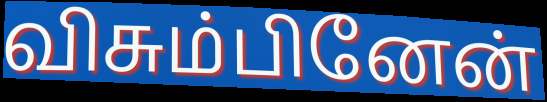
விசும்பினேன்